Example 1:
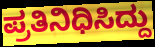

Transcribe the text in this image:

ಪ್ರತಿನಿಧಿಸಿದ್ದು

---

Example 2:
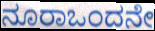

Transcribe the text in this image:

ನೂರಾಒಂದನೇ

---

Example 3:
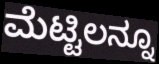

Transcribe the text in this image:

ಮೆಟ್ಟಿಲನ್ನೂ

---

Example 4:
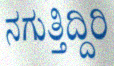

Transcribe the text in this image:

ನಗುತ್ತಿದ್ದಿರಿ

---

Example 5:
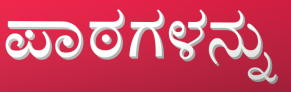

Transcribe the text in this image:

ಪಾಠಗಳನ್ನು